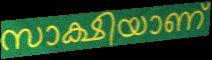
സാക്ഷിയാണ്